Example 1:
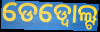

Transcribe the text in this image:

ଡେଡ୍ବୋଲ୍ଟ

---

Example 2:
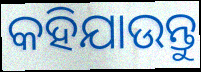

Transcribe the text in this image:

କହିଯାଉନ୍ତୁ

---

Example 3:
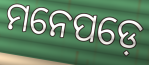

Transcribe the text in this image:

ମନେପଡ଼େ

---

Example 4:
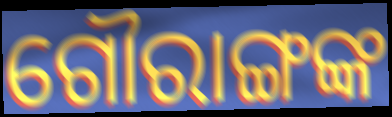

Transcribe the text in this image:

ଗୌରାଙ୍ଗଙ୍କ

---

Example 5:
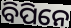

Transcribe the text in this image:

ବିପିନେ